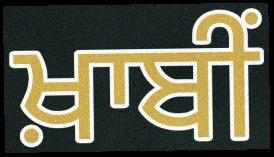
ਖ਼ਾਬੀਂ